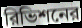
রিভিশনের